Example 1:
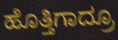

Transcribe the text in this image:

ಹೊತ್ತಿಗಾದ್ರೂ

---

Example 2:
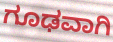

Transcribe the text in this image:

ಗೂಢವಾಗಿ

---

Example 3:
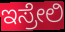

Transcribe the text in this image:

ಇಸ್ರೇಲಿ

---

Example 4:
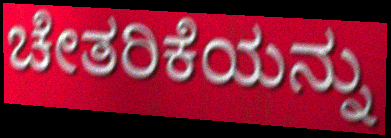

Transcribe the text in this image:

ಚೇತರಿಕೆಯನ್ನು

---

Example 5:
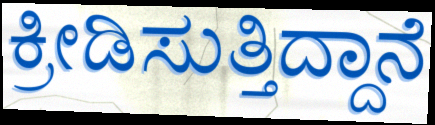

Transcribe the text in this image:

ಕ್ರೀಡಿಸುತ್ತಿದ್ದಾನೆ